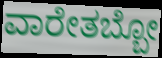
ವಾರೇತಬ್ಬೋ